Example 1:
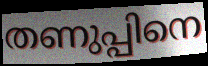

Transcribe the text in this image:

തണുപ്പിനെ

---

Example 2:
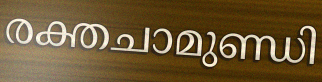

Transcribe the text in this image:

രക്തചാമുണ്ഡി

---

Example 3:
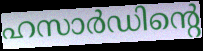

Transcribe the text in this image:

ഹസാർഡിന്റെ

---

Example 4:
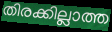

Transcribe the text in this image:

തിരക്കില്ലാത്ത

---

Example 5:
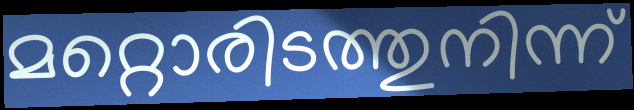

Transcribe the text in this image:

മറ്റൊരിടത്തുനിന്ന്